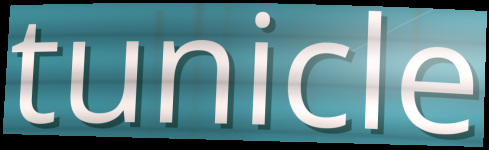
tunicle